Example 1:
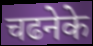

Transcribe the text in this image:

चढनेके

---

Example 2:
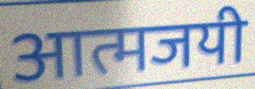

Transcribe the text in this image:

आत्मजयी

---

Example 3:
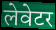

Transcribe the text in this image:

लेवेटर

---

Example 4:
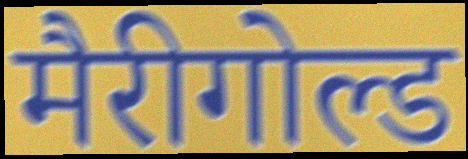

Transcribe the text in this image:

मैरीगोल्ड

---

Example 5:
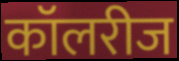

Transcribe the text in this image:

कॉलरीज